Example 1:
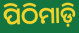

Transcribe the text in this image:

ପିଠିମାଡ଼ି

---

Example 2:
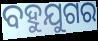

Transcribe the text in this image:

ବହୁଯୁଗର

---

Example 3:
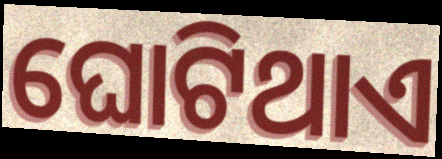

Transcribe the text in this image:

ଘୋଟିଥାଏ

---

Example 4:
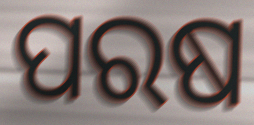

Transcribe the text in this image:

ପରଷ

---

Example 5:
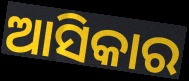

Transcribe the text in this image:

ଆସିକାର